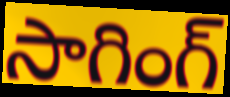
సాగింగ్